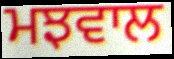
ਮਝਵਾਲ